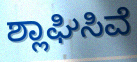
ಶ್ಲಾಘಿಸಿವೆ